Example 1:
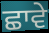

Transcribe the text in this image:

ਛਾਵੇ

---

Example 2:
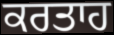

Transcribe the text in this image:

ਕਰਤਾਹ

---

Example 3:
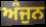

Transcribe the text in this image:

ਅੰਜੁਨ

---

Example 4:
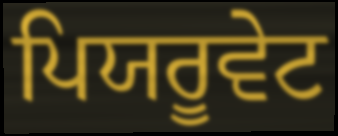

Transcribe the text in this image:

ਪਿਯਰੂਵੇਟ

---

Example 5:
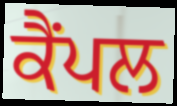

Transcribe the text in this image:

ਕੈਂਪਲ